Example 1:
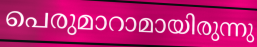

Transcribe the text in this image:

പെരുമാറാമായിരുന്നു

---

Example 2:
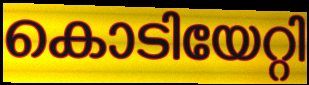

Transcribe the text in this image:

കൊടിയേറ്റി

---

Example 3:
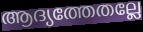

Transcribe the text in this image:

ആദ്യത്തേതല്ലേ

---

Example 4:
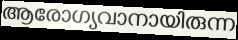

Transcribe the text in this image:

ആരോഗ്യവാനായിരുന്ന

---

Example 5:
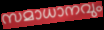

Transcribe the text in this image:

സമാധാനവും